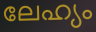
ലേഹ്യം